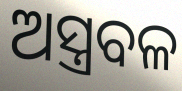
ଅସ୍ତ୍ରବଳ